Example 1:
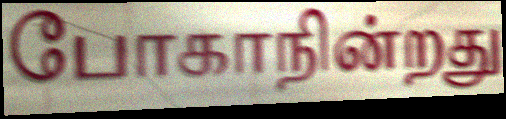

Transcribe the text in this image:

போகாநின்றது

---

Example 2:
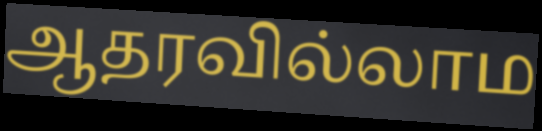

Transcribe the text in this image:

ஆதரவில்லாம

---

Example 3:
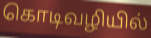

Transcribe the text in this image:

கொடிவழியில்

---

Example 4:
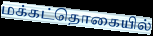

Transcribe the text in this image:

மக்கட்தொகையில்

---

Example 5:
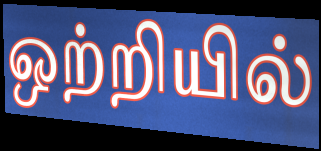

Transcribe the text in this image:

ஒற்றியில்